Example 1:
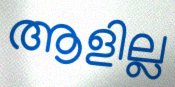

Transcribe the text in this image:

ആളില്ല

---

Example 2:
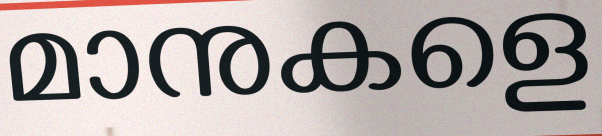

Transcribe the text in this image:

മാനുകളെ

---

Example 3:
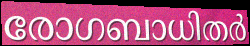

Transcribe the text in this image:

രോഗബാധിതർ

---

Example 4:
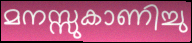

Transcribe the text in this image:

മനസ്സുകാണിച്ചു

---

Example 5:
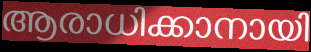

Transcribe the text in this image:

ആരാധിക്കാനായി